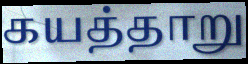
கயத்தாறு